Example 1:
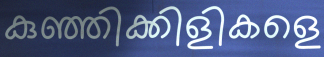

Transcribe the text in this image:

കുഞ്ഞിക്കിളികളെ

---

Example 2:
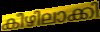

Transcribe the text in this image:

കീഴിലാക്കി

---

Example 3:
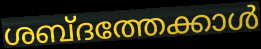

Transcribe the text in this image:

ശബ്ദത്തേക്കാൾ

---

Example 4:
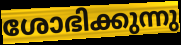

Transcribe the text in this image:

ശോഭിക്കുന്നു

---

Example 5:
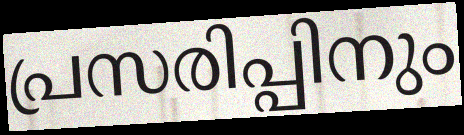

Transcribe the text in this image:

പ്രസരിപ്പിനും